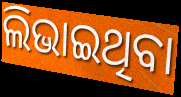
ଲିଭାଇଥିବା